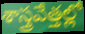
శాస్త్రవేత్తల్లో